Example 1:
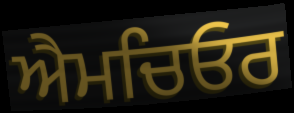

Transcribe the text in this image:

ਐਮਚਿਓਰ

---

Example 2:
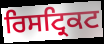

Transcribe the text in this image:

ਰਿਸਟ੍ਰਿਕਟ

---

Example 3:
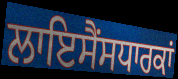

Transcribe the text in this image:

ਲਾਇਸੈਂਸਧਾਰਕਾਂ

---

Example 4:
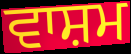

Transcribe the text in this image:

ਵਾਸ਼ਮ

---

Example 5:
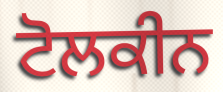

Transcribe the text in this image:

ਟੋਲਕੀਨ